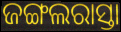
ଜଙ୍ଗଲରାସ୍ତା